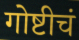
गोष्टीचं